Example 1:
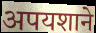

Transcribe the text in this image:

अपयशाने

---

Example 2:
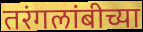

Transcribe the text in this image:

तरंगलांबीच्या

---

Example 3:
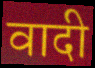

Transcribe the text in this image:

वादी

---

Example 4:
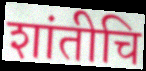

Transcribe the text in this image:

शांतीचि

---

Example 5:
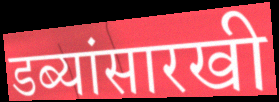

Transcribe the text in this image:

डब्यांसारखी